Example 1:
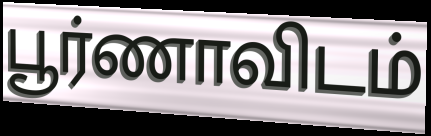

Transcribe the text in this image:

பூர்ணாவிடம்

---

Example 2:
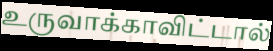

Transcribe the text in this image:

உருவாக்காவிட்டால்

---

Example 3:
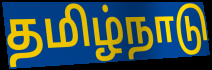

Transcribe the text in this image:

தமிழ்நாடு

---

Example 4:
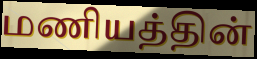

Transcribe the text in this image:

மணியத்தின்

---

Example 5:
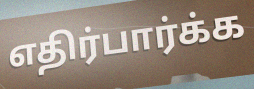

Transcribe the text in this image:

எதிர்பார்க்க